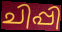
ചിപ്പി